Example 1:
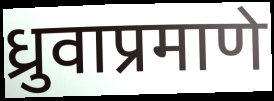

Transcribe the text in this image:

ध्रुवाप्रमाणे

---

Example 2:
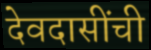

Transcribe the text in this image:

देवदासींची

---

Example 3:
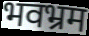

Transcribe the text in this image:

भवभ्रम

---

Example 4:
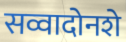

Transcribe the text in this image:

सव्वादोनशे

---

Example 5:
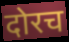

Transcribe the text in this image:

दोरच